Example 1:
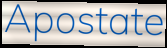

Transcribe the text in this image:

Apostate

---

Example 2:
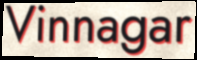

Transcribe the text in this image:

Vinnagar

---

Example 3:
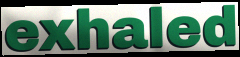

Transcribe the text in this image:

exhaled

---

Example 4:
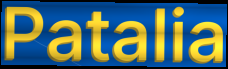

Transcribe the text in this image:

Patalia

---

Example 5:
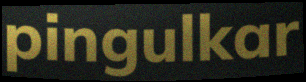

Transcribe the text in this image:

pingulkar